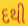
દથી